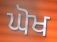
ਘੋਖ